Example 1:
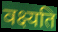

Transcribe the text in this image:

वक्ष्यति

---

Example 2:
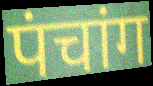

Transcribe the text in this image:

पंचांग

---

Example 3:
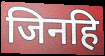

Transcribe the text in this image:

जिनहि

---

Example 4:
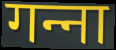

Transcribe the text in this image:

गन्‍ना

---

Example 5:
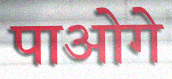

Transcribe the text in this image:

पाओगे